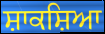
ਸ਼ਾਕਸ਼ਿਆ